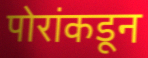
पोरांकडून